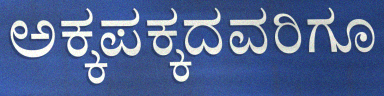
ಅಕ್ಕಪಕ್ಕದವರಿಗೂ